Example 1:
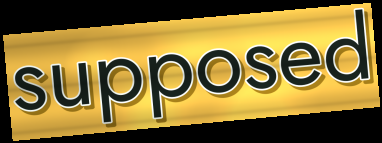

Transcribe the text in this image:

supposed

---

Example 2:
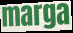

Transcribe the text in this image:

marga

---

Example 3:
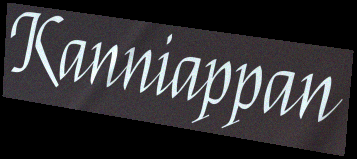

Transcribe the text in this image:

Kanniappan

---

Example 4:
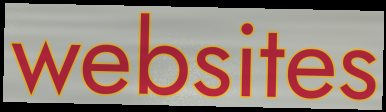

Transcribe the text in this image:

websites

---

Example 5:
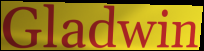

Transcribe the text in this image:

Gladwin